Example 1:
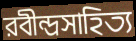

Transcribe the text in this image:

রবীন্দ্রসাহিত্য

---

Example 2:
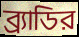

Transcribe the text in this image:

ব্র্যাডির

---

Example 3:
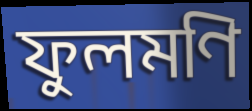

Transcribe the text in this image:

ফুলমণি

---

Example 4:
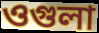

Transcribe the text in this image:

ওগুলা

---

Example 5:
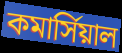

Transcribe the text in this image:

কমার্সিয়াল